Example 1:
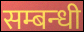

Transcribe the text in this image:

सम्‍बन्‍धी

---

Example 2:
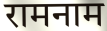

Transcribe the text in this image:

रामनाम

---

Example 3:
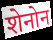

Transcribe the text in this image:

शेनोन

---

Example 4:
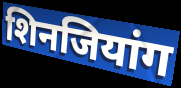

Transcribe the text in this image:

शिनजियांग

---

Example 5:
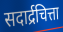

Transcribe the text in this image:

सदार्द्रचित्ता